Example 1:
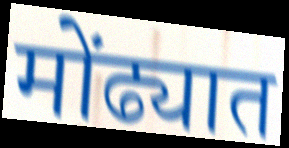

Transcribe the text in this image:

मोंढ्यात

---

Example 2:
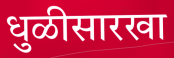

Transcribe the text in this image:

धुळीसारखा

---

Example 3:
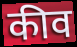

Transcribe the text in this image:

कीव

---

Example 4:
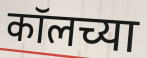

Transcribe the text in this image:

कॉलच्या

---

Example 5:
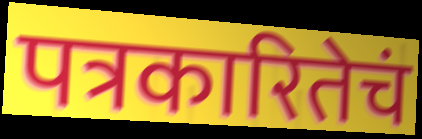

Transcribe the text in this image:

पत्रकारितेचं